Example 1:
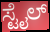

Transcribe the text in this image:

ಸ್ಟೈಲ್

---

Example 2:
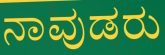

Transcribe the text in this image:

ನಾವುಡರು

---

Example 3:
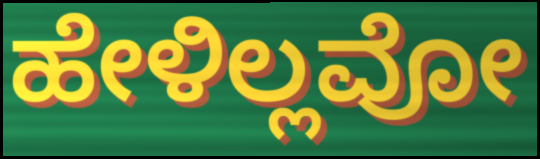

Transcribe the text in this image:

ಹೇಳಿಲ್ಲವೋ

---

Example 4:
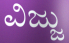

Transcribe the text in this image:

ವಿಜ್ಜು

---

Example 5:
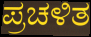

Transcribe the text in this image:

ಪ್ರಚಳಿತ